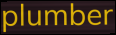
plumber